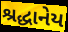
શ્રદ્ધાનેય